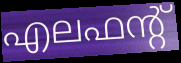
എലഫന്റ്